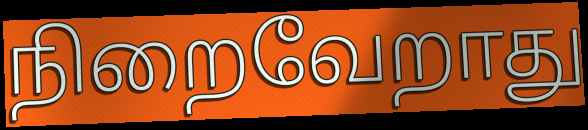
நிறைவேறாது